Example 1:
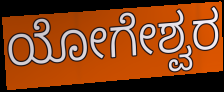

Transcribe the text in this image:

ಯೋಗೇಶ್ವರ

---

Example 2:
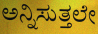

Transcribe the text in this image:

ಅನ್ನಿಸುತ್ತಲೇ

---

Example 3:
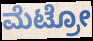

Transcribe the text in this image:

ಮೆಟ್ರೋ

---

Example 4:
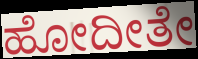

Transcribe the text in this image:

ಹೋದೀತೇ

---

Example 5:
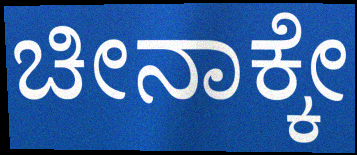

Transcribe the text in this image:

ಚೀನಾಕ್ಕೇ